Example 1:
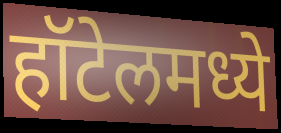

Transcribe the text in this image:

हॉटेलमध्ये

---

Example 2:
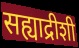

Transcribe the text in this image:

सह्याद्रीशी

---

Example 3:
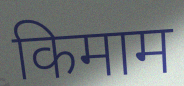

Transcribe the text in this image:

किमाम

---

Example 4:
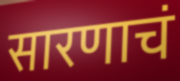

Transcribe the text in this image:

सारणाचं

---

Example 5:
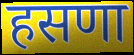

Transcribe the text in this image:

हसणा